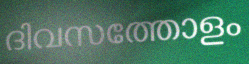
ദിവസത്തോളം